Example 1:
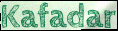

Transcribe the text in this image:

Kafadar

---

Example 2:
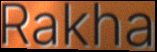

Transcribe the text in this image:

Rakha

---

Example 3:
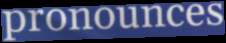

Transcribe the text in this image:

pronounces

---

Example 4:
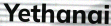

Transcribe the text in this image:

Yethanai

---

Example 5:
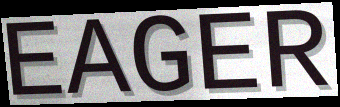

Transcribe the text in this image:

EAGER